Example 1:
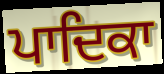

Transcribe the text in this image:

ਪਾਦਿਕਾ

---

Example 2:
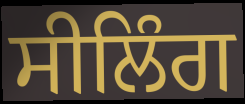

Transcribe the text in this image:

ਸੀਲਿੰਗ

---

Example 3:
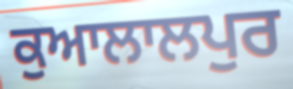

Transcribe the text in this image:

ਕੁਆਲਾਲਪੁਰ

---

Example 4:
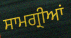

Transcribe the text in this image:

ਸਾਮਗ੍ਰੀਆਂ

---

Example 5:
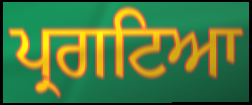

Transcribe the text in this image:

ਪ੍ਰਗਟਿਆ